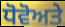
ਧੋਵੋਅਤੇ